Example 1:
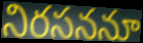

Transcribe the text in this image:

నిరసననూ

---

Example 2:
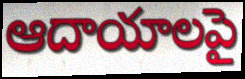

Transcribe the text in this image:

ఆదాయాలపై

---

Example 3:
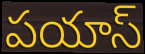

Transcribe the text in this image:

పయాస్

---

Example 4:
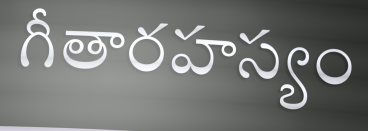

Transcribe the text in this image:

గీతారహస్యం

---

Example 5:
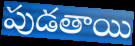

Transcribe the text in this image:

పుడతాయి